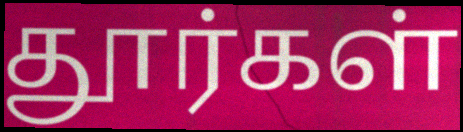
தூர்கள்